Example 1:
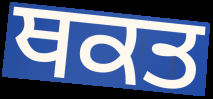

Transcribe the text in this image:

ਥਕਤ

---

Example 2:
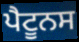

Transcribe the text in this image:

ਪੈਟੂਨਸ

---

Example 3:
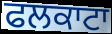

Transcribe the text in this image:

ਫਲਕਾਟਾ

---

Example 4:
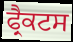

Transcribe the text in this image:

ਫ੍ਰੈਕਟਸ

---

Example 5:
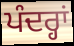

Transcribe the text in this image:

ਪੰਦਰ੍ਹਾਂ